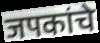
जपकांचे